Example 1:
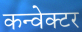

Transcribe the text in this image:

कन्वेक्टर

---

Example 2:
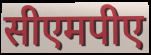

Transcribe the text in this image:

सीएमपीए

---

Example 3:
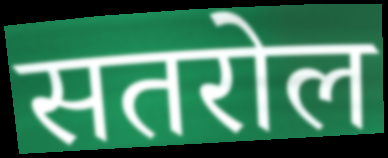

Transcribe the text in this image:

सतरोल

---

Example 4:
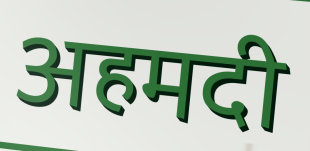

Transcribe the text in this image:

अहमदी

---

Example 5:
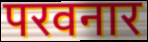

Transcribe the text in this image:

परवनार